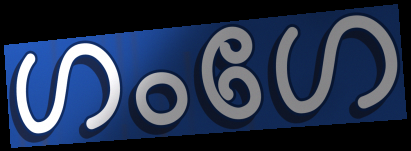
ഗംഗേ